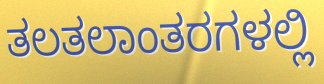
ತಲತಲಾಂತರಗಳಲ್ಲಿ